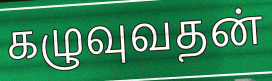
கழுவுவதன்